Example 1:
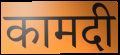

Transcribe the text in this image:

कामदी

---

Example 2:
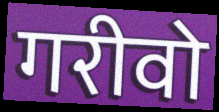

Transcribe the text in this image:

गरीवो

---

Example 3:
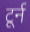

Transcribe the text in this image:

टूर्न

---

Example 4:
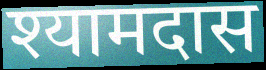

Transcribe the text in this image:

श्यामदास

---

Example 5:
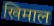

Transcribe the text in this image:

खिमाल